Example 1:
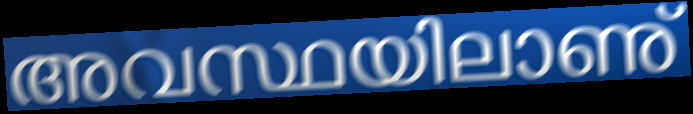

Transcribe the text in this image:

അവസ്ഥയിലാണു്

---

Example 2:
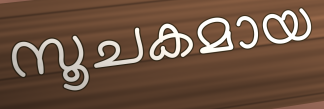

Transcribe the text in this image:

സൂചകമായ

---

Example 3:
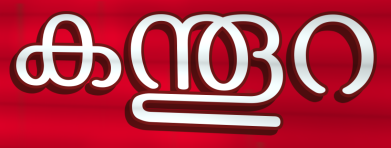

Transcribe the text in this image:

കന്തൂറ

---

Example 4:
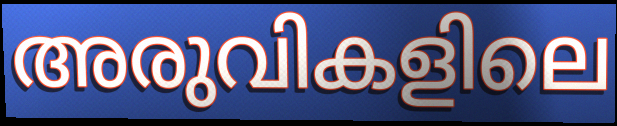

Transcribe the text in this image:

അരുവികളിലെ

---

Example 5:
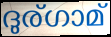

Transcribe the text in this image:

ദുര്ഗാമ്